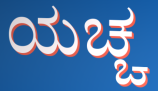
ಯಚ್ಚ